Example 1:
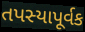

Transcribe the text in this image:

તપસ્યાપૂર્વક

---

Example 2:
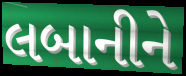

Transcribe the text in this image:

લબાનીને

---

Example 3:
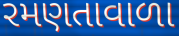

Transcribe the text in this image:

રમણતાવાળા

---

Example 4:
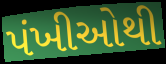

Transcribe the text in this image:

પંખીઓથી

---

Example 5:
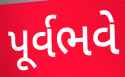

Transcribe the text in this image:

પૂર્વભવે